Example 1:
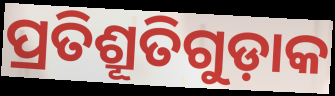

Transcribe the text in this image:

ପ୍ରତିଶ୍ରୂତିଗୁଡ଼ାକ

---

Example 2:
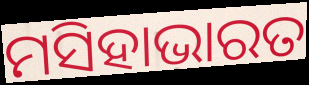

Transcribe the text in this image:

ମସିହାଭାରତ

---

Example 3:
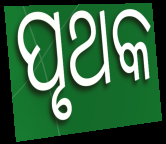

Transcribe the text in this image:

ପୃଥକ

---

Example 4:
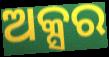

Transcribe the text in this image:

ଅକ୍ସର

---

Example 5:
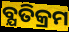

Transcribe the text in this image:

ବ୍ଯତିକ୍ରମ